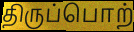
திருப்பொற்